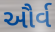
ઔર્વ